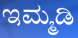
ಇಮ್ಮಡಿ